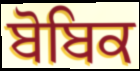
ਬੋਬਿਕ